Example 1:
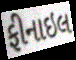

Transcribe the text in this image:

ફીનાઇલ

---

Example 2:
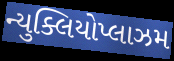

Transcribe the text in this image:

ન્યુક્લિયોપ્લાઝમ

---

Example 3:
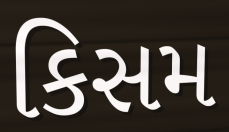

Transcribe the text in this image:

કિસમ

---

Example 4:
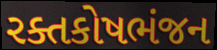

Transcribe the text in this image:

રક્તકોષભંજન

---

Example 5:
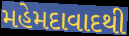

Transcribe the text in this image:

મહેમદાવાદથી